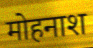
मोहनाश